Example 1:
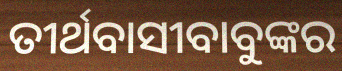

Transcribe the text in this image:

ତୀର୍ଥବାସୀବାବୁଙ୍କର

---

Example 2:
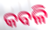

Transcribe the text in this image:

କବଳି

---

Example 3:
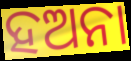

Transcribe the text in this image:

ହଅନା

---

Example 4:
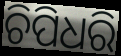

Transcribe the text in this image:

ଚିପିଧରି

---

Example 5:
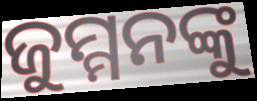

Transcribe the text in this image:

ଜୁମ୍ମନଙ୍କୁ